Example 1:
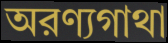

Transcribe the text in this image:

অরণ্যগাথা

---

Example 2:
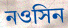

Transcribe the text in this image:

নওসিন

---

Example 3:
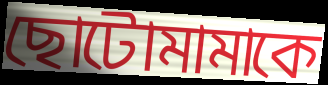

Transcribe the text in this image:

ছোটোমামাকে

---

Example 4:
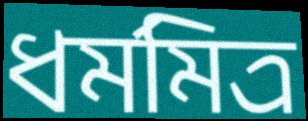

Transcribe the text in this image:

ধর্মমিত্র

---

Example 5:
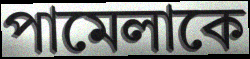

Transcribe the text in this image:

পামেলাকে